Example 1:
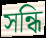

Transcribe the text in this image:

সন্ধি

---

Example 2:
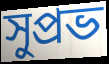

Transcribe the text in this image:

সুপ্রভ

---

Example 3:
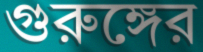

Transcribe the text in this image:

গুরুঙ্গের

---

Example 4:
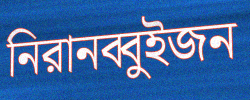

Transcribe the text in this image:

নিরানব্বুইজন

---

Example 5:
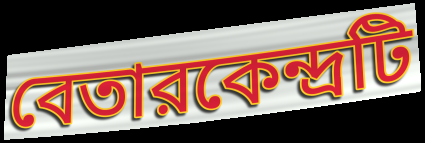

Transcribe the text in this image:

বেতারকেন্দ্রটি